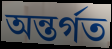
অন্তৰ্গত